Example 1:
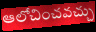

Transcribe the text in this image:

ఆలోచించవచ్చు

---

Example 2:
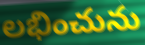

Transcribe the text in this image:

లభించును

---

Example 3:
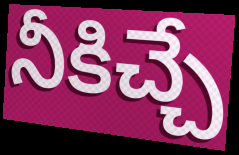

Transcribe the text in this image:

నీకిచ్చే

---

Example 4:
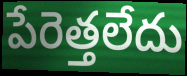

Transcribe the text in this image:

పేరెత్తలేదు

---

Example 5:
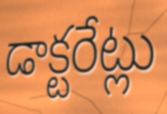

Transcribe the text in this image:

డాక్టరేట్లు